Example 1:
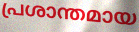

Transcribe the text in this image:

പ്രശാന്തമായ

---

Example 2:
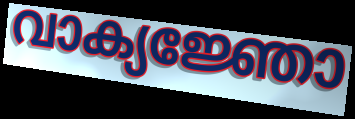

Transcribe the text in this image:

വാക്യജ്ഞോ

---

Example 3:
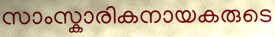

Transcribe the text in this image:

സാംസ്കാരികനായകരുടെ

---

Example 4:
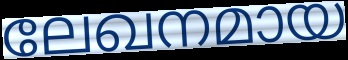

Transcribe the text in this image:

ലേഖനമായ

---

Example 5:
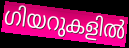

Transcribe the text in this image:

ഗിയറുകളിൽ